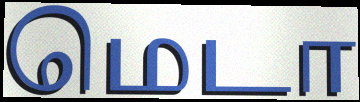
மெடா